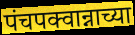
पंचपक्वान्नाच्या